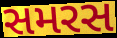
સમરસ